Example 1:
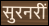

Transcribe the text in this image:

सुरनरीं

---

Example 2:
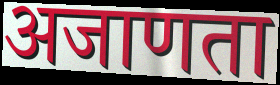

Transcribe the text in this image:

अजाणता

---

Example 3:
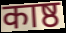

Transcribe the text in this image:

काष्ठ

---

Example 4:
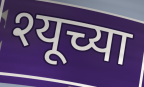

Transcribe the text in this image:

श्यूच्या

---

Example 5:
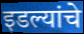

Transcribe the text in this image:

इडल्यांचे